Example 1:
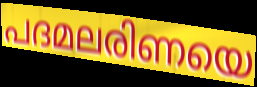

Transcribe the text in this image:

പദമലരിണയെ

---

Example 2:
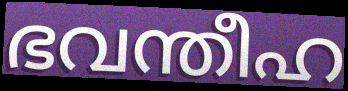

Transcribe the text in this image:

ഭവന്തീഹ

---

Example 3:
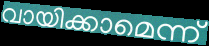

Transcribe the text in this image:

വായിക്കാമെന്ന്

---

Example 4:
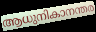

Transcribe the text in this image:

ആധുനികാനന്തര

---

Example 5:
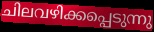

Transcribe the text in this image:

ചിലവഴിക്കപ്പെടുന്നു